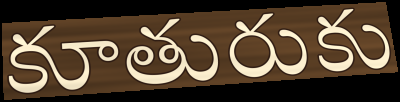
కూతురుకు